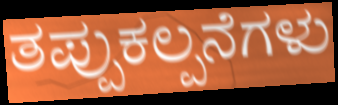
ತಪ್ಪುಕಲ್ಪನೆಗಳು